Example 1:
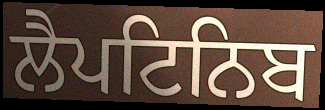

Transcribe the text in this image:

ਲੈਪਟਿਨਿਬ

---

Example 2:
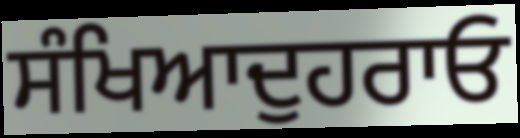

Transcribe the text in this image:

ਸੰਖਿਆਦੁਹਰਾਓ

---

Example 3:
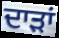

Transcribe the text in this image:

ਦਾੜਾਂ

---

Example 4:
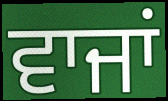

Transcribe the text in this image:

ਵਾਜਾਂ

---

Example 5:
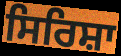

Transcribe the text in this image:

ਸਿਰਿਸ਼ਾ